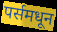
पर्समधून